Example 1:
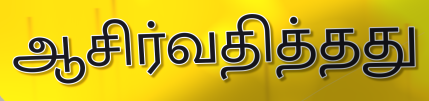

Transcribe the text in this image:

ஆசிர்வதித்தது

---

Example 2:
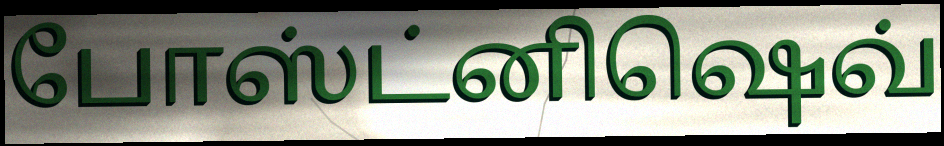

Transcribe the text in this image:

போஸ்ட்னிஷெவ்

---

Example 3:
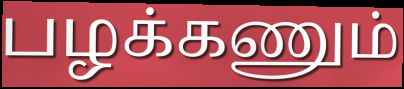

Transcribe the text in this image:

பழக்கணும்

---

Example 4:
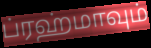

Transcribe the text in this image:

ப்ரஹ்மாவும்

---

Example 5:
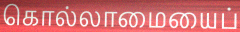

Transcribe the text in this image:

கொல்லாமையைப்